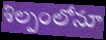
శిల్పంలోనూ